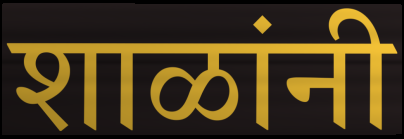
शाळांनी